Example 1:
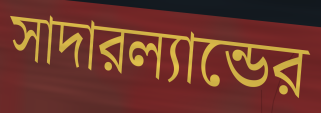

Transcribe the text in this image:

সাদারল্যান্ডের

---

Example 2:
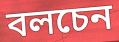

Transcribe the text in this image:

বলচেন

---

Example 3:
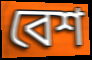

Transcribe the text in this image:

বেশ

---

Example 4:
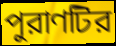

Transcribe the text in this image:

পুরাণটির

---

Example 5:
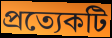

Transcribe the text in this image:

প্রত্যেকটি